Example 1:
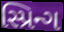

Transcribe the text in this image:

સ્પ્રિન્ગ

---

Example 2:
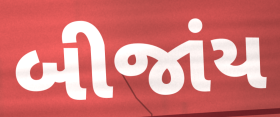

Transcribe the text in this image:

બીજાંય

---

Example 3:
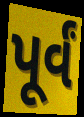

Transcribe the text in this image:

પૂર્વં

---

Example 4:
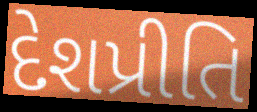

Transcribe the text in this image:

દેશપ્રીતિ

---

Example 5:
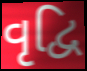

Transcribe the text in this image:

વૃદ્વિ